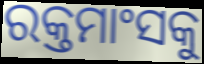
ରକ୍ତମାଂସକୁ